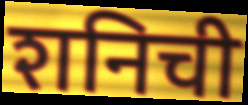
शनिची